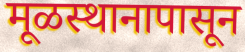
मूळस्थानापासून